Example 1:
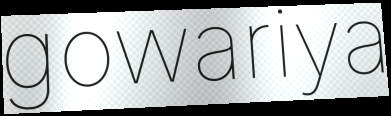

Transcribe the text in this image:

gowariya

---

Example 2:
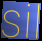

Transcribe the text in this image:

sil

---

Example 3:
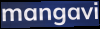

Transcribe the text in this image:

mangavi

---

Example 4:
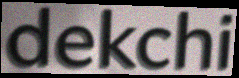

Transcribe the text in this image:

dekchi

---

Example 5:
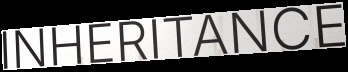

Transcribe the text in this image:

INHERITANCE